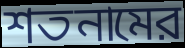
শতনামের